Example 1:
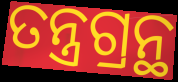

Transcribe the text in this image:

ତନ୍ତ୍ରଗ୍ରନ୍ଥ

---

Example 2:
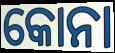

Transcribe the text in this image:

କୋନା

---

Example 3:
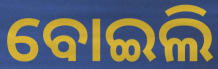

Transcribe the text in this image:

ବୋଇଲି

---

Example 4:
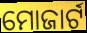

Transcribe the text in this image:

ମୋଜାର୍ଟ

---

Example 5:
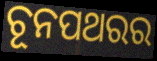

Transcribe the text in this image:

ଚୂନପଥରର